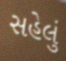
સહેલું